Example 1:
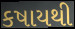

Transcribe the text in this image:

કષાયથી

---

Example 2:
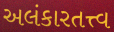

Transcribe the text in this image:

અલંકારતત્ત્વ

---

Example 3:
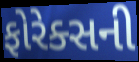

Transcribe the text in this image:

ફોરેક્સની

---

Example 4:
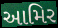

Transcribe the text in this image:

આમિર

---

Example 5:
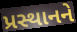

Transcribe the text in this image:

પ્રસ્થાનને